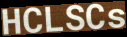
HCLSCs